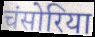
चंसोरिया